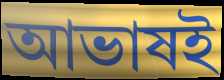
আভাষই